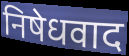
निषेधवाद